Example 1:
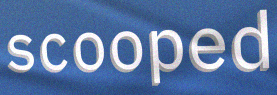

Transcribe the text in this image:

scooped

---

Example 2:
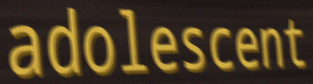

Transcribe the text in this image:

adolescent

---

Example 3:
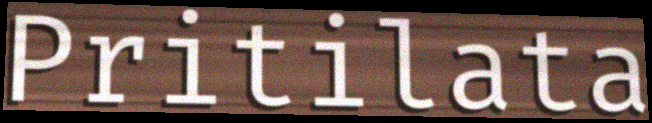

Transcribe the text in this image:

Pritilata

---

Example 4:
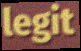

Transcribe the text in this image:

legit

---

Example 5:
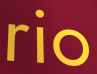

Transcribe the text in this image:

rio